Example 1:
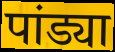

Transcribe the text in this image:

पांड्या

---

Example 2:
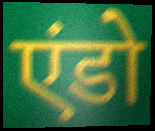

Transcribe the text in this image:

एंडो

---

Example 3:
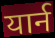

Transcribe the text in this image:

यार्न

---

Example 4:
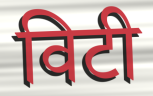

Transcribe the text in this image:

विटी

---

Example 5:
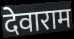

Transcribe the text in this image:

देवाराम